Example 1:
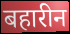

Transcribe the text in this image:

बहारीन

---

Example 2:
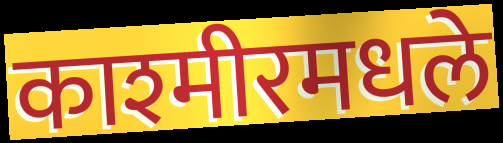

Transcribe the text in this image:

काश्‍मीरमधले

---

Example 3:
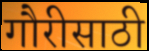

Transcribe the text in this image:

गौरीसाठी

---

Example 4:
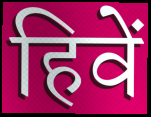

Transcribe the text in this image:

हिवें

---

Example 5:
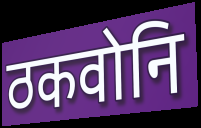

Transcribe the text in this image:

ठकवोनि